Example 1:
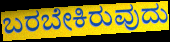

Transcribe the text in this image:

ಬರಬೇಕಿರುವುದು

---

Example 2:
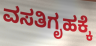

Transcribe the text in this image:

ವಸತಿಗೃಹಕ್ಕೆ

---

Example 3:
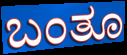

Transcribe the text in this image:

ಬಂತೂ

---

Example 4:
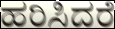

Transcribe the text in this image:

ಹರಿಸಿದರೆ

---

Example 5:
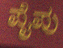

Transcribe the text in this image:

ಪೈಪು